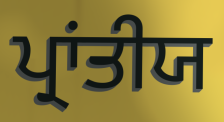
ਪ੍ਰਾਂਤੀਯ